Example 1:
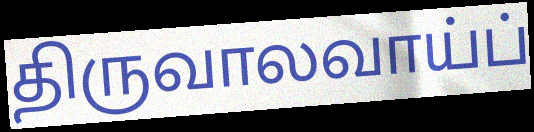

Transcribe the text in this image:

திருவாலவாய்ப்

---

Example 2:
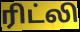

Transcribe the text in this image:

ரிட்லி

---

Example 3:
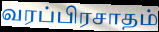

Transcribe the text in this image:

வரப்பிரசாதம்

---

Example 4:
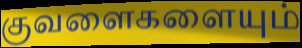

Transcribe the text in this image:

குவளைகளையும்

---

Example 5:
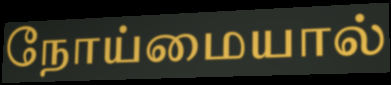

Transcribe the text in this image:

நோய்மையால்